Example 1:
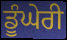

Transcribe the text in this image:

ਡੂੰਘੇਰੀ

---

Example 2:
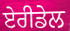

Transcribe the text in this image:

ਏਰੀਡੇਲ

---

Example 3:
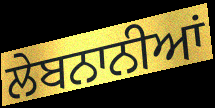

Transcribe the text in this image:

ਲੇਬਨਾਨੀਆਂ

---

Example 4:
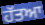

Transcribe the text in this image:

ਹੱਤਆ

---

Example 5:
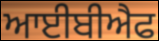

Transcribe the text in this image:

ਆਈਬੀਐਫ